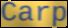
Carp